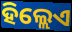
ହିଲ୍ଲେଏ